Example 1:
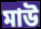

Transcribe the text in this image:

মাউ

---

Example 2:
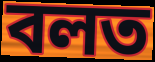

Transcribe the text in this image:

বলত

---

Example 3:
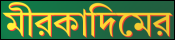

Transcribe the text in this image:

মীরকাদিমের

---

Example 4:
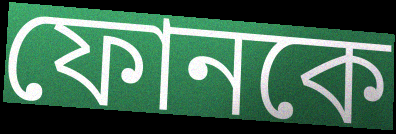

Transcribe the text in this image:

ফোনকে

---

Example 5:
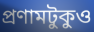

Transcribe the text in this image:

প্রণামটুকুও